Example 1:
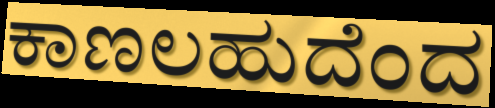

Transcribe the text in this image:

ಕಾಣಲಹುದೆಂದ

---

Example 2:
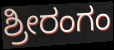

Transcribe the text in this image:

ಶ್ರೀರಂಗಂ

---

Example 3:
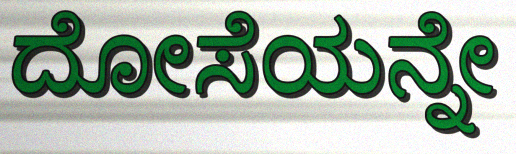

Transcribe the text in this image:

ದೋಸೆಯನ್ನೇ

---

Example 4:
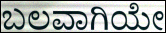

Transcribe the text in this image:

ಬಲವಾಗಿಯೇ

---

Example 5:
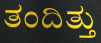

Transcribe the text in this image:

ತಂದಿತ್ತು